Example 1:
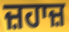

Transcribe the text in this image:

ਜ਼ਹਾਜ਼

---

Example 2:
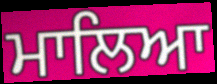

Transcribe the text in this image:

ਮਾਲਿਆ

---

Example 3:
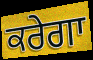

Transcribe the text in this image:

ਕਰੇਗਾ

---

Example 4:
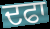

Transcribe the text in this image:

ਦਫਾ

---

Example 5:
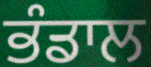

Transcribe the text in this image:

ਭੰਡਾਲ